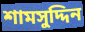
শামসুদ্দিন